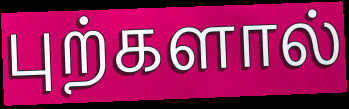
புற்களால்